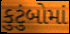
કુટુંબોમાં